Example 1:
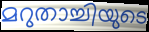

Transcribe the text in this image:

മറുതാച്ചിയുടെ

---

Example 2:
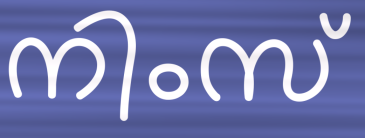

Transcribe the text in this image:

നിംസ്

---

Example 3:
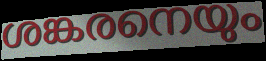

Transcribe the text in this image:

ശങ്കരനെയും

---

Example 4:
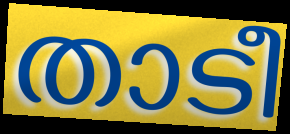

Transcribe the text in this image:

താടീ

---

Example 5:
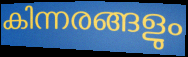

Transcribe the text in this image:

കിന്നരങ്ങളും